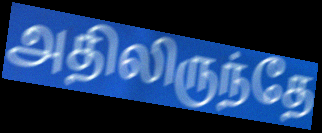
அதிலிருந்தே